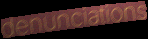
denunciations